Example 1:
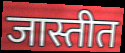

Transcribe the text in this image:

जास्तीत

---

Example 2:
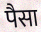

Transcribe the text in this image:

पैसा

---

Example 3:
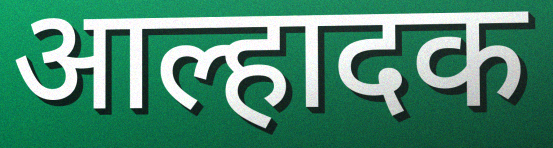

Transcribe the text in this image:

आल्हादक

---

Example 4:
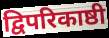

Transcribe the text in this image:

द्विपरिकाष्ठी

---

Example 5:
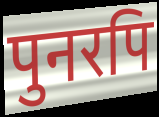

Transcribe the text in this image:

पुनरपि